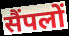
सैंपलों